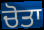
ਚੋਤਾ